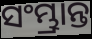
ସଂମ୍ଭ୍ରାନ୍ତ